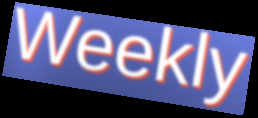
Weekly